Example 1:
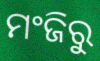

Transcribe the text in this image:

ମଂଜିରୁ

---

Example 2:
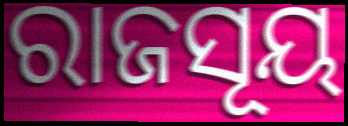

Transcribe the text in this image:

ରାଜସୂୟ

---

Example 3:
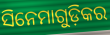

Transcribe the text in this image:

ସିନେମାଗୁଡ଼ିକର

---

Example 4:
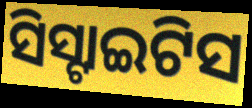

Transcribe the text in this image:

ସିସ୍ଟାଇଟିସ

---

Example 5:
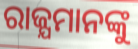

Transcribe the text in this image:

ରାଜ୍ଯମାନଙ୍କୁ